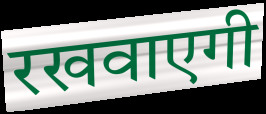
रखवाएगी